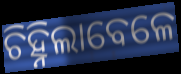
ଚିହ୍ନିଲାବେଳେ